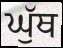
ਘੁੱਥ